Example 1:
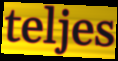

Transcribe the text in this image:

teljes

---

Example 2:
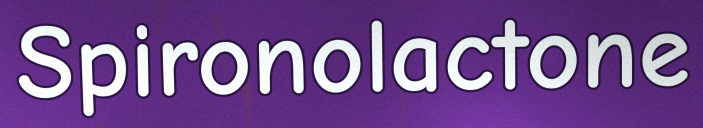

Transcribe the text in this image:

Spironolactone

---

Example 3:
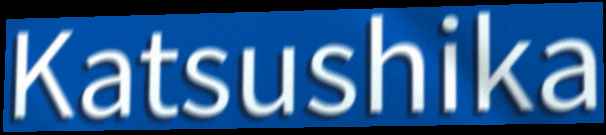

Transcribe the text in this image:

Katsushika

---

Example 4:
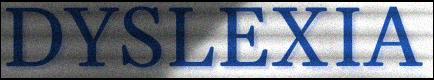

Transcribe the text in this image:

DYSLEXIA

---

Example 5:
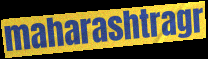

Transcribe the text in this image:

maharashtragr